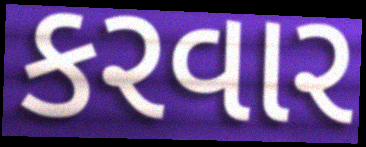
કરવાર